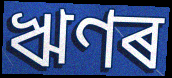
ঋণৰ